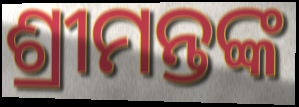
ଶ୍ରୀମନ୍ତଙ୍କ